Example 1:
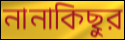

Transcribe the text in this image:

নানাকিছুর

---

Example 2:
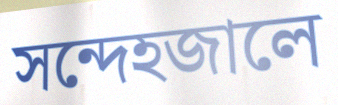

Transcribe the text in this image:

সন্দেহজালে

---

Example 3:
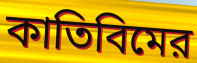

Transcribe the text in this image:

কাতিবিমের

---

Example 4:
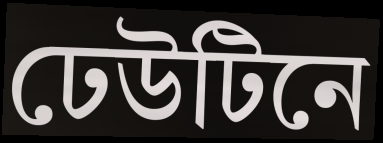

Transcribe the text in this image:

ঢেউটিনে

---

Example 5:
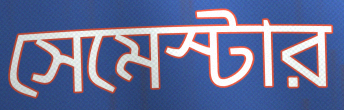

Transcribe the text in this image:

সেমেস্টার